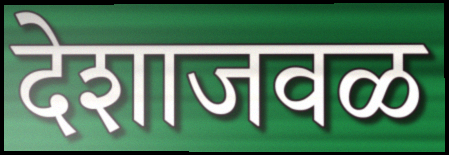
देशाजवळ